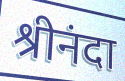
श्रीनंदा